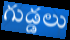
గుడ్డలు